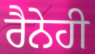
ਰੈਨੇਹੀ